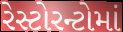
રેસ્ટોરન્ટોમાં